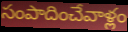
సంపాదించేవాళ్లం